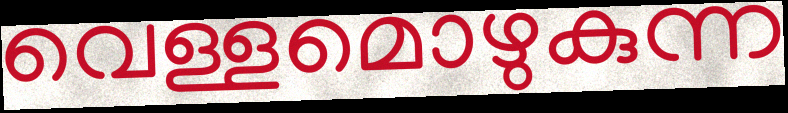
വെള്ളമൊഴുകുന്ന